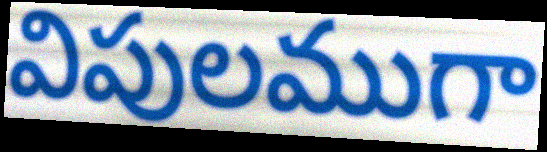
విపులముగా